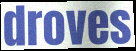
droves